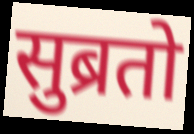
सुब्रतो